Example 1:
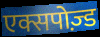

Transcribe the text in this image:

एक्सपोज़्ड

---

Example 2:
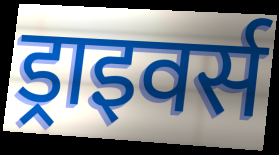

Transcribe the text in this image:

ड्राइवर्स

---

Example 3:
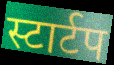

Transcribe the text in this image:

स्टार्टप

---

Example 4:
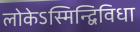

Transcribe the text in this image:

लोकेऽस्मिन्द्विविधा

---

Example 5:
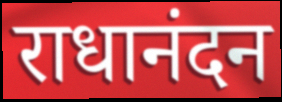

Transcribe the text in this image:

राधानंदन